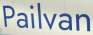
Pailvan